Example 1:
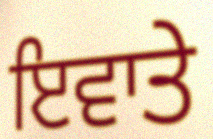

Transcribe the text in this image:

ਇਵਾਤੇ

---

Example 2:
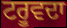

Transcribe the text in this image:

ਟਰੂਵਦਾ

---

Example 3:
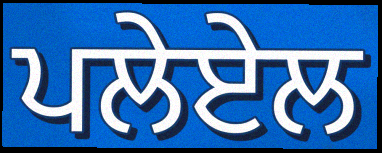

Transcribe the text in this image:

ਪਲੇਏਲ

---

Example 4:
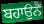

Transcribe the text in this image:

ਬਹਾਉਨੈਂ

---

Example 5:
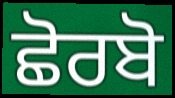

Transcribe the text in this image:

ਛੋਰਬੋ